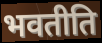
भवतीति